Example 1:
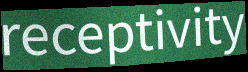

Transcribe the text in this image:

receptivity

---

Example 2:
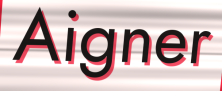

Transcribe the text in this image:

Aigner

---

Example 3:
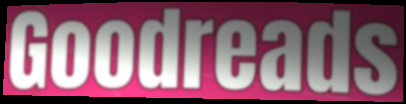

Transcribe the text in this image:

Goodreads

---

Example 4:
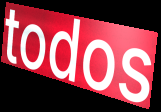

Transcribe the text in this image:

todos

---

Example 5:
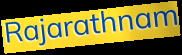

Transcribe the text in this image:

Rajarathnam